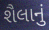
શૈલાનું